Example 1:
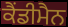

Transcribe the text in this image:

ਕੈਂਡੀਮੈਨ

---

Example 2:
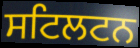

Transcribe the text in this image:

ਸਟਿਲਟਨ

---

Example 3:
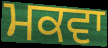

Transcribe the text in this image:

ਮਕਵਾ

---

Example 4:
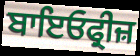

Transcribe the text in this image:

ਬਾਇਓਫ੍ਰੀਜ਼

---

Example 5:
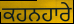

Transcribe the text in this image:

ਕਹਨਹਾਰੇ